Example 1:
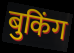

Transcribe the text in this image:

बुकिंग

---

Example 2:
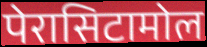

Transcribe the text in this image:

पेरासिटामोल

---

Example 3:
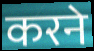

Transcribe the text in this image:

करने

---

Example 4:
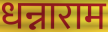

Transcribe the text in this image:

धन्नाराम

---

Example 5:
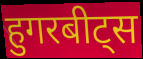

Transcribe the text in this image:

हुगरबीट्स